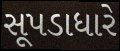
સૂપડાધારે